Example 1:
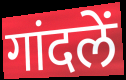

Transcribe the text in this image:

गांदलें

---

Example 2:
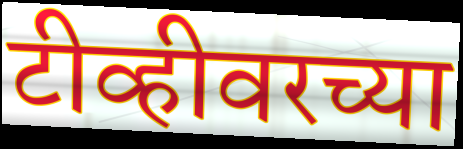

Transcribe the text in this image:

टीव्हीवरच्या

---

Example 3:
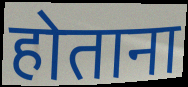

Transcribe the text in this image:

होताना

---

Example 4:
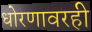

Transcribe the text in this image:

धोरणावरही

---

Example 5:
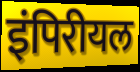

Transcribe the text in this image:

इंपिरीयल